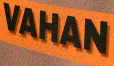
VAHAN